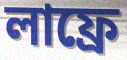
লাফ্রে